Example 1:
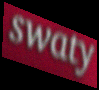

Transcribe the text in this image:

swaty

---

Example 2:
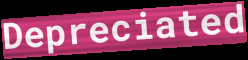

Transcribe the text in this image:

Depreciated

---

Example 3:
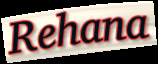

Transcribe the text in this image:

Rehana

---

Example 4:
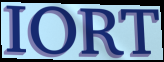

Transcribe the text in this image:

IORT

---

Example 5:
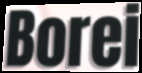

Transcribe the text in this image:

Borei